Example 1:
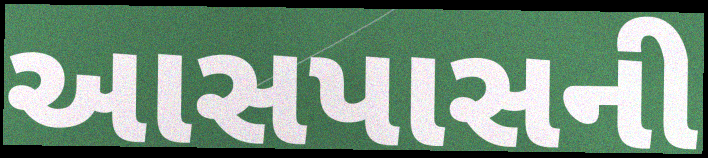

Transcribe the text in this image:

આસપાસની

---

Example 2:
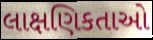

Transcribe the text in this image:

લાક્ષણિકતાઓ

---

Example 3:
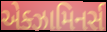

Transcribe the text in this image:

એક્ઝામિનર્સ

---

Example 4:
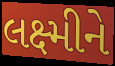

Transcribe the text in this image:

લક્ષ્મીને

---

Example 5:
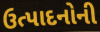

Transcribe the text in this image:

ઉત્પાદનોની